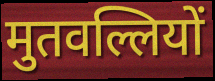
मुतवल्लियों